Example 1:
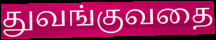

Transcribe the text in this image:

துவங்குவதை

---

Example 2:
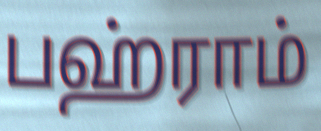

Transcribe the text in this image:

பஹ்ராம்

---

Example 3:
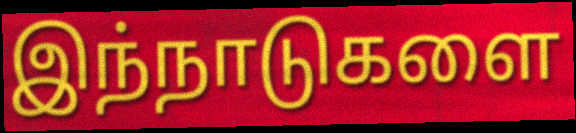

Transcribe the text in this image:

இந்நாடுகளை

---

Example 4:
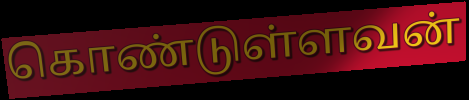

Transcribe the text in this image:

கொண்டுள்ளவன்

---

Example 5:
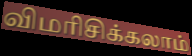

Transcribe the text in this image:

விமரிசிக்கலாம்